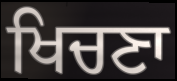
ਖਿਚਣਾ